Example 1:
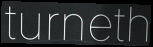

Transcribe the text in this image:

turneth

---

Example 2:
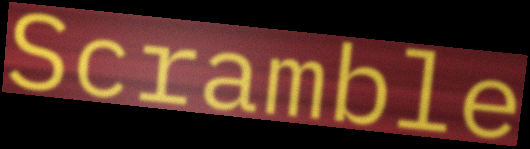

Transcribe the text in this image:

Scramble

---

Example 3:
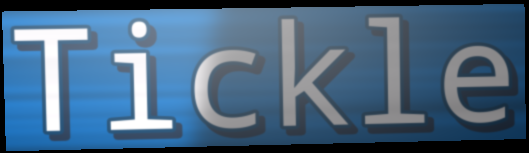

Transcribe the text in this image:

Tickle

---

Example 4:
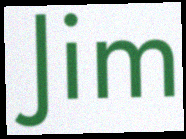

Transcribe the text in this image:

Jim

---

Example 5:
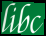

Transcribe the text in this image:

libc